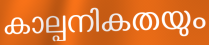
കാല്പനികതയും